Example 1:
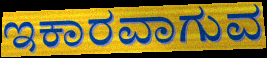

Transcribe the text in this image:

ಇಕಾರವಾಗುವ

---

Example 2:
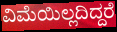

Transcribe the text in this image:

ವಿಮೆಯಿಲ್ಲದಿದ್ದರೆ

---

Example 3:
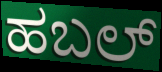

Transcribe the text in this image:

ಹಬಲ್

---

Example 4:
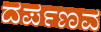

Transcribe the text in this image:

ದರ್ಪಣವ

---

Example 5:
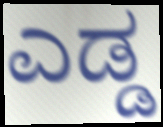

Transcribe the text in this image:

ಎಡ್ಡ